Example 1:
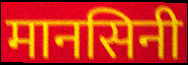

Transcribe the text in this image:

मानसिनी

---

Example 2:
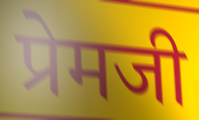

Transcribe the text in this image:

प्रेमजी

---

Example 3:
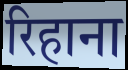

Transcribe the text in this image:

रिहाना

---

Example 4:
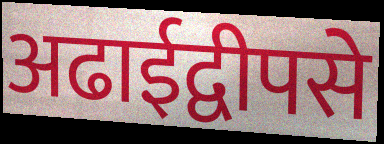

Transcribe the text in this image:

अढाईद्वीपसे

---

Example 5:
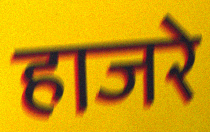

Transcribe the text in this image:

हाजरे